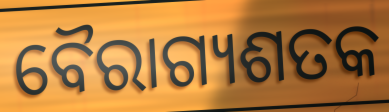
ବୈରାଗ୍ୟଶତକ